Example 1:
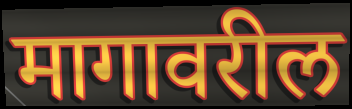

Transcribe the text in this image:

मागावरील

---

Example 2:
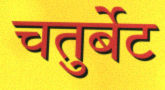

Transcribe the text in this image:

चतुर्बेट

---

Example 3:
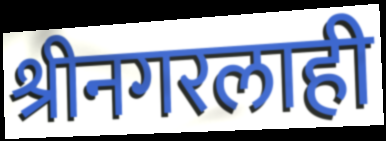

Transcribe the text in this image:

श्रीनगरलाही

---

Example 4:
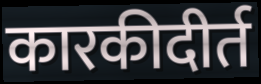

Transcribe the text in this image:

कारकीदीर्त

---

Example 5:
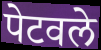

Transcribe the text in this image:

पेटवले